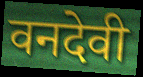
वनदेवी